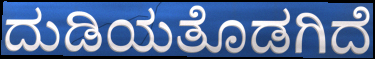
ದುಡಿಯತೊಡಗಿದೆ